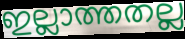
ഇല്ലാത്തതല്ല